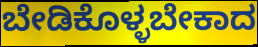
ಬೇಡಿಕೊಳ್ಳಬೇಕಾದ